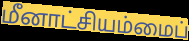
மீனாட்சியம்மைப்